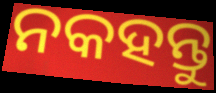
ନକହନ୍ତୁ